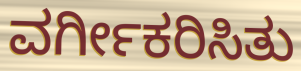
ವರ್ಗೀಕರಿಸಿತು